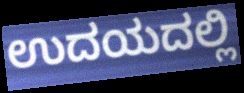
ಉದಯದಲ್ಲಿ